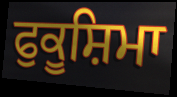
ਫੁਕੂਸ਼ਿਮਾ